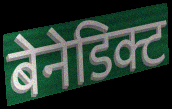
बेनेडिक्ट